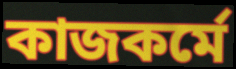
কাজকর্মে